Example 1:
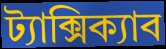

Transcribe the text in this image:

ট্যাক্সিক্যাব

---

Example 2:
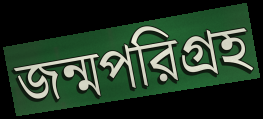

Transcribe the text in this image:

জন্মপরিগ্রহ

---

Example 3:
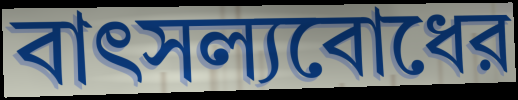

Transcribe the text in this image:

বাৎসল্যবোধের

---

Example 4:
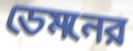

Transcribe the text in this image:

ডেমনের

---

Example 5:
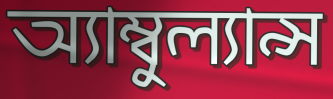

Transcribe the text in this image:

অ্যাম্বুল্যান্স